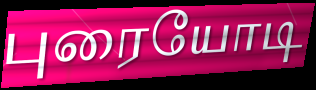
புரையோடி